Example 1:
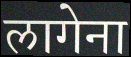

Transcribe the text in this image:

लागेना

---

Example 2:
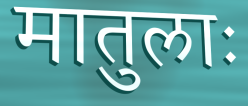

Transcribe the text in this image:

मातुलाः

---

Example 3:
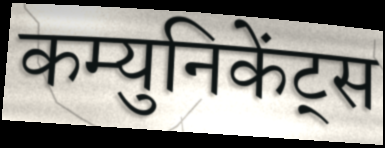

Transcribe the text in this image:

कम्युनिकेंट्स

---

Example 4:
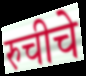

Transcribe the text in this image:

रुचीचे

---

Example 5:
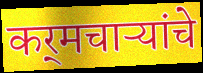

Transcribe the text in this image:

कर्मचाऱ्यांचे